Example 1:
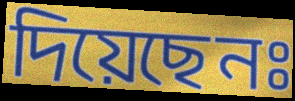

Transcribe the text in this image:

দিয়েছেনঃ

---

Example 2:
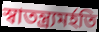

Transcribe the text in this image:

স্বাতন্ত্র্যমর্হতি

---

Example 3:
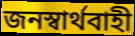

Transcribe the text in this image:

জনস্বার্থবাহী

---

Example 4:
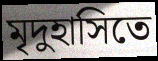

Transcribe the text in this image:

মৃদুহাসিতে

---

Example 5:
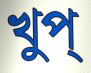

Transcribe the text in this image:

খুপ্